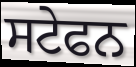
ਸਟੇਫਨ